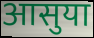
आसुया